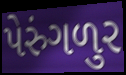
પેરુંગળુર